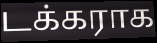
டக்கராக